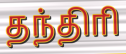
தந்திரி